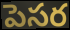
పెసర